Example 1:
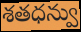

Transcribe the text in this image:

శతధన్వు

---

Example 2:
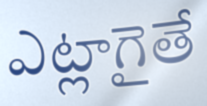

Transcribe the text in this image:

ఎట్లాగైతే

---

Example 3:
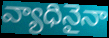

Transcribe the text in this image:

వ్యాధినైనా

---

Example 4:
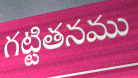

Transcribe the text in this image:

గట్టితనము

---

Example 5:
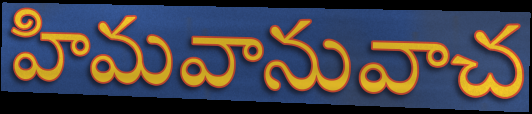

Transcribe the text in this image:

హిమవానువాచ